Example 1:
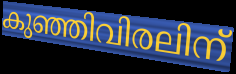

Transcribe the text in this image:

കുഞ്ഞിവിരലിന്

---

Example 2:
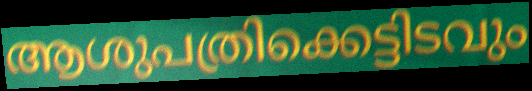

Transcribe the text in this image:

ആശുപത്രിക്കെട്ടിടവും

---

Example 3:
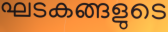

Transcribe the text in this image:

ഘടകങ്ങളുടെ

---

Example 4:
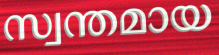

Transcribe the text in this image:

സ്വന്തമായ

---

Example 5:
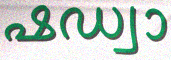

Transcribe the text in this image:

ഷഡ്വാ